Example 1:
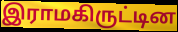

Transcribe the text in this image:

இராமகிருட்டின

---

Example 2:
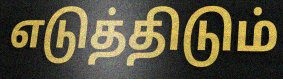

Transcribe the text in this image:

எடுத்திடும்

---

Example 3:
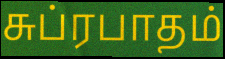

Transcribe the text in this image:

சுப்ரபாதம்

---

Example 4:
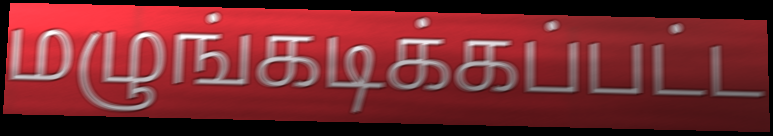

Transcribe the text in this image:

மழுங்கடிக்கப்பட்ட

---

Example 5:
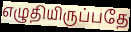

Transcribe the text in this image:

எழுதியிருப்பதே